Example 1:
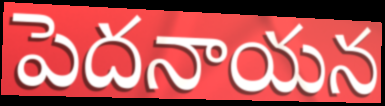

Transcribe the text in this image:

పెదనాయన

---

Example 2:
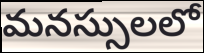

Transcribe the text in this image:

మనస్సులలో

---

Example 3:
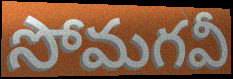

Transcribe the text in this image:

సోమగవీ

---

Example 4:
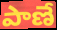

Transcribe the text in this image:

పాణే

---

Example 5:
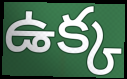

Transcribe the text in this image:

ఉక్క